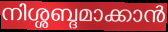
നിശ്ശബ്ദമാക്കാൻ